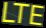
LTE